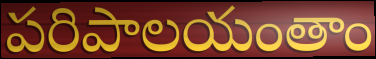
పరిపాలయంతాం